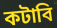
কটাবি